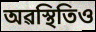
অৱস্থিতিও